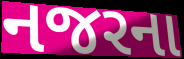
નજરના